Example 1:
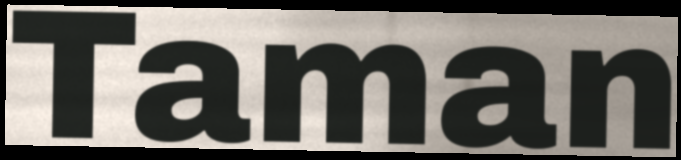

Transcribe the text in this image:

Taman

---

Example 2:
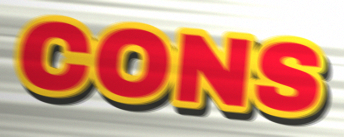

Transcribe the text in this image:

CONS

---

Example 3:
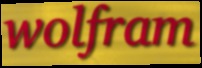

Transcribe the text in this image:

wolfram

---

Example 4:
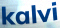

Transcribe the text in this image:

kalvi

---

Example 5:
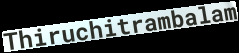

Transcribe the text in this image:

Thiruchitrambalam